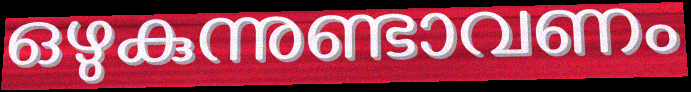
ഒഴുകുന്നുണ്ടാവണം